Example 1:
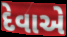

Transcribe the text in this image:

દેવાએ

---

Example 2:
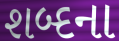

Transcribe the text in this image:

શબ્દના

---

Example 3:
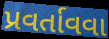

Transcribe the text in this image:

પ્રવર્તાવવા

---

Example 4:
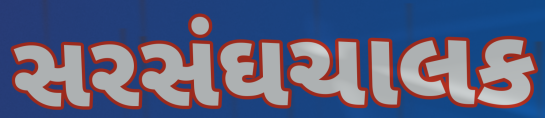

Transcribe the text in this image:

સરસંઘચાલક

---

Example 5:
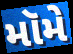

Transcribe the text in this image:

મૉમે